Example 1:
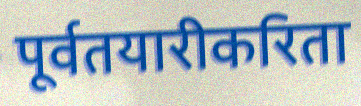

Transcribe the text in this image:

पूर्वतयारीकरिता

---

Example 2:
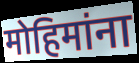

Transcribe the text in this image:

मोहिमांना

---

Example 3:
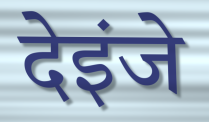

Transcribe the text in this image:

देइंजे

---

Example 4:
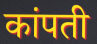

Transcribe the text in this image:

कांपती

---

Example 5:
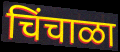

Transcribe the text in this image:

चिंचाळा